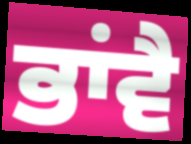
ਭਾਂਵੈ